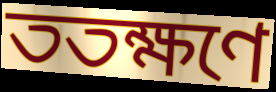
ততক্ষণে